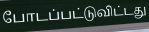
போடப்பட்டுவிட்டது